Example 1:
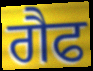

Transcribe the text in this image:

ਗੈਫ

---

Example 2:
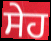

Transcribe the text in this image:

ਸੇਹ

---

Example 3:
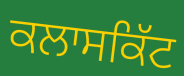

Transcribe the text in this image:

ਕਲਾਸਕਿੱਟ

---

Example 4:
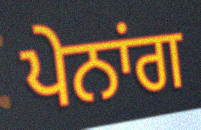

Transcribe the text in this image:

ਪੇਨਾਂਗ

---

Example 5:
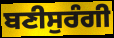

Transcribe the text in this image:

ਬਣੀਸੁਰੰਗੀ